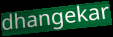
dhangekar